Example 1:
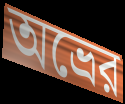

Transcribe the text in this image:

অভ্রের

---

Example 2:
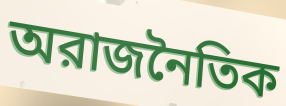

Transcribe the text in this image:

অরাজনৈতিক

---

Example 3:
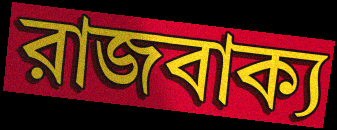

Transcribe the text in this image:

রাজবাক্য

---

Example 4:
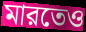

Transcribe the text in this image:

মারতেও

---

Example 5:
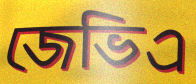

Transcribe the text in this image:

জেভিএ